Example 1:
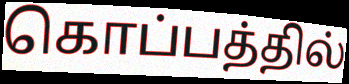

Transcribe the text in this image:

கொப்பத்தில்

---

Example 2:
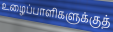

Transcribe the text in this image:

உழைப்பாளிகளுக்குத்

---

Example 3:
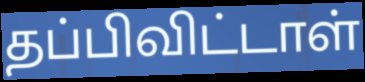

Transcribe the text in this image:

தப்பிவிட்டாள்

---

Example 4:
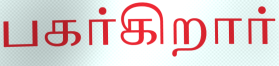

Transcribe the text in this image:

பகர்கிறார்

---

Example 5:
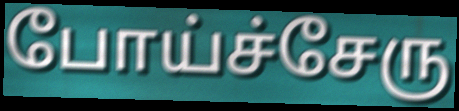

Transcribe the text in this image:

போய்ச்சேரு